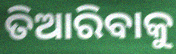
ତିଆରିବାକୁ